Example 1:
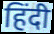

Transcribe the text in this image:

हिंदी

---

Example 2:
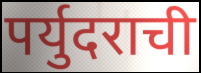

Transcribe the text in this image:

पर्युदराची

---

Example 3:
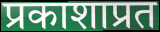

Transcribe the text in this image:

प्रकाशाप्रत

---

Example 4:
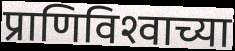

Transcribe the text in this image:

प्राणिविश्वाच्या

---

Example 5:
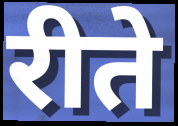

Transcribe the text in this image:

रीते